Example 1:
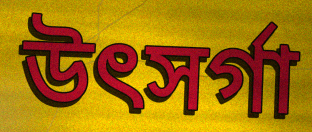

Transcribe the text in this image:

উৎসৰ্গা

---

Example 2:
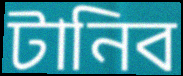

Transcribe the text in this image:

টানিব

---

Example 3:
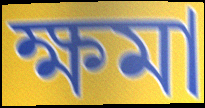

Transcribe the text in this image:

ক্ষমা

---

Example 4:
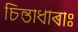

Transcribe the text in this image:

চিন্তাধাৰাঃ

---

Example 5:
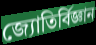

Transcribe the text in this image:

জ্যোতিৰ্বিজ্ঞান